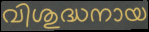
വിശുദ്ധനായ